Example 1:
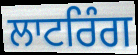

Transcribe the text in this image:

ਲਾਟਰਿੰਗ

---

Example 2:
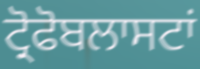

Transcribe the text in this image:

ਟ੍ਰੋਫੋਬਲਾਸਟਾਂ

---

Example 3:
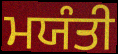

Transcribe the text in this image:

ਮਯੰਤੀ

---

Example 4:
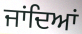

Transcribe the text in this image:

ਜਾਂਦਿਆਂ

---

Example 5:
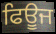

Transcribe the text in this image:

ਫਿਊਜ